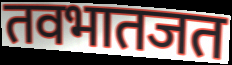
तवभातजत